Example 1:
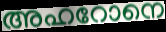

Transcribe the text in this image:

അഹറോനെ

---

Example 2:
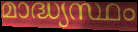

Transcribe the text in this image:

മാദ്ധ്യസ്ഥം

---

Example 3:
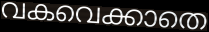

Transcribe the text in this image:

വകവെക്കാതെ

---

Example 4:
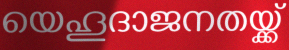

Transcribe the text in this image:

യെഹൂദാജനതയ്ക്ക്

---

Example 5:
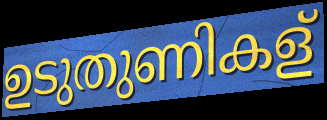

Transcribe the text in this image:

ഉടുതുണികള്